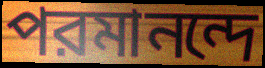
পরমানন্দে